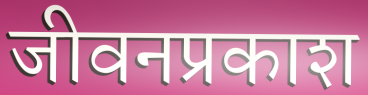
जीवनप्रकाश